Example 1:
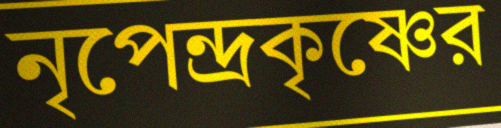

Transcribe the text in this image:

নৃপেন্দ্রকৃষ্ণের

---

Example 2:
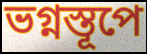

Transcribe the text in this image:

ভগ্নস্তূপে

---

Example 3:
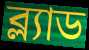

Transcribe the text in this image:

ব্ল্যাড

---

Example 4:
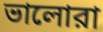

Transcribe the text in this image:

ভালোরা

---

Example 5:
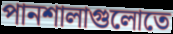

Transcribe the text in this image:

পানশালাগুলোতে